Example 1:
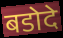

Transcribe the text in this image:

बडोदे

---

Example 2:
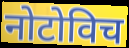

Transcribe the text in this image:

नोटोविच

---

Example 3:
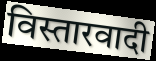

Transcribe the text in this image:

विस्तारवादी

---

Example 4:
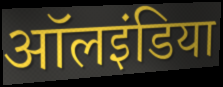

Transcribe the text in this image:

ऑलइंडिया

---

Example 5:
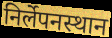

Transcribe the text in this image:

निर्लेपनस्थान